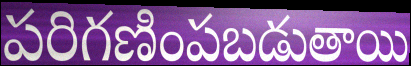
పరిగణింపబడుతాయి